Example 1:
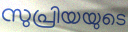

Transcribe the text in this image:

സുപ്രിയയുടെ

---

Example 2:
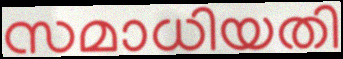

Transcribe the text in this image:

സമാധിയതി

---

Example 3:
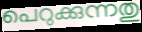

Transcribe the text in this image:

പെറുക്കുന്നതു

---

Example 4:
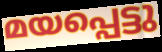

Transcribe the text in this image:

മയപ്പെട്ടു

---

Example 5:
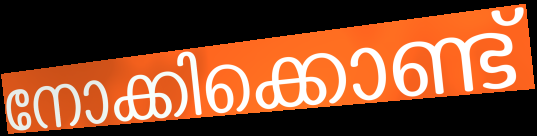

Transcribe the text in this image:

നോക്കിക്കൊണ്ട്